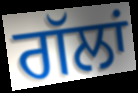
ਗੱਲਾਂ